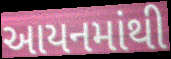
આયનમાંથી